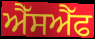
ਐੱਸਐੱਫ